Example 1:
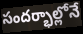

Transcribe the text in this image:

సందర్భాల్లోనే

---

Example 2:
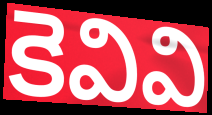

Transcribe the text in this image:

కెవివి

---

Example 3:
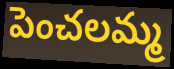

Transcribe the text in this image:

పెంచలమ్మ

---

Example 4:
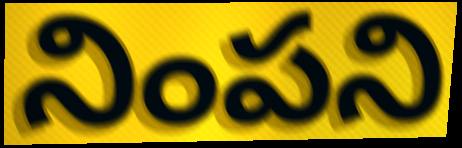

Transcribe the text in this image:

నింపని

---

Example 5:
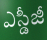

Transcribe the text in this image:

ఎస్డీజీ